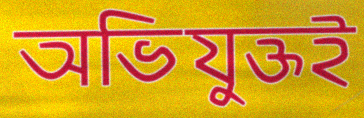
অভিযুক্তই